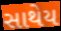
સાથેય